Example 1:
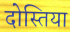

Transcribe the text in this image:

दोस्तिया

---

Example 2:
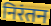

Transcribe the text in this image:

निरंतन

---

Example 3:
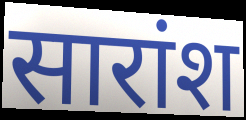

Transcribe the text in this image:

सारांश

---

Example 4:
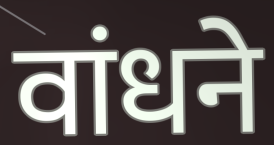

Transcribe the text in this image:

वांधने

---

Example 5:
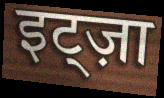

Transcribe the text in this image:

इट्ज़ा